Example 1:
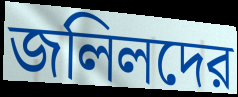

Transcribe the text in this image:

জলিলদের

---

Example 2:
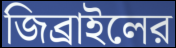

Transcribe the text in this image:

জিব্রাইলের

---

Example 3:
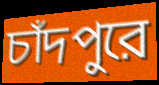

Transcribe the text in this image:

চাঁদপুরে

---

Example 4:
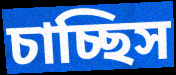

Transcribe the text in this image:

চাচ্ছিস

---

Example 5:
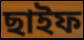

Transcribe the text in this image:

ছাইফ